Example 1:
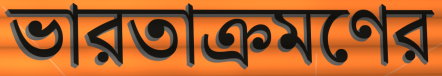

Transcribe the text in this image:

ভারতাক্রমণের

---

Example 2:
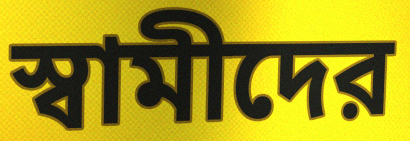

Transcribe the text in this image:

স্বামীদের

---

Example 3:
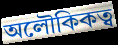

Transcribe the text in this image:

অলৌকিকত্ব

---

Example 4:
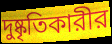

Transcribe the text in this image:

দুষ্কৃতিকারীর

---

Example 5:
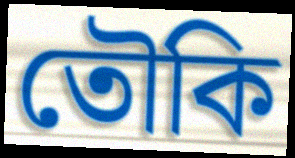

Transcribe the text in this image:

তৌকি